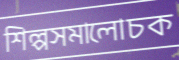
শিল্পসমালোচক